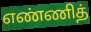
எண்ணித்